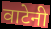
वाटेनी